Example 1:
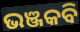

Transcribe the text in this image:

ଭଞ୍ଜକବି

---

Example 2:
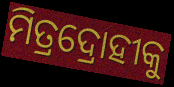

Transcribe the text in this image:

ମିତ୍ରଦ୍ରୋହୀକୁ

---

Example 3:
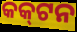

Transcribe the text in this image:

କକ୍‌ଟନ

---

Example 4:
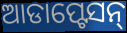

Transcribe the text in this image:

ଆଡାପ୍ଟେସନ୍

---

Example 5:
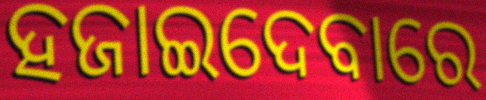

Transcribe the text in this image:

ହଜାଇଦେବାରେ